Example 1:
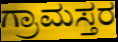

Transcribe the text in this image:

ಗ್ರಾಮಸ್ತರ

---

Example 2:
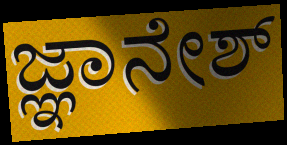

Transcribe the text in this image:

ಜ್ಞಾನೇಶ್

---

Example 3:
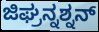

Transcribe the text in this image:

ಜಿಘ್ರನ್ನಶ್ನನ್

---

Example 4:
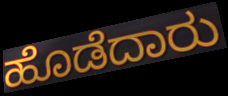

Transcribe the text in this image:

ಹೊಡೆದಾರು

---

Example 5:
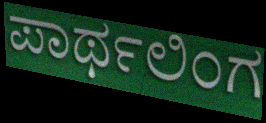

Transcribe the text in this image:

ಪಾರ್ಥಲಿಂಗ